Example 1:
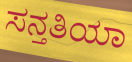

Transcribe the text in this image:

ಸನ್ತತಿಯಾ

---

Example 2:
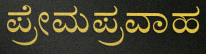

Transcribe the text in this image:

ಪ್ರೇಮಪ್ರವಾಹ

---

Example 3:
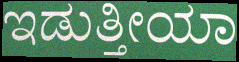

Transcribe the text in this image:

ಇಡುತ್ತೀಯಾ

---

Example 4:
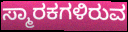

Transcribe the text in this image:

ಸ್ಮಾರಕಗಳಿರುವ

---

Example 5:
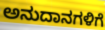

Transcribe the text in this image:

ಅನುದಾನಗಳಿಗೆ